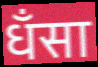
धँसा